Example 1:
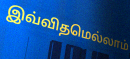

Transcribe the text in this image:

இவ்விதமெல்லாம்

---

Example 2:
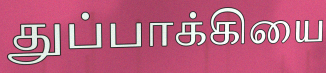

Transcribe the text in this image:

துப்பாக்கியை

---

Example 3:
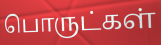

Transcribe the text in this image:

பொருட்கள்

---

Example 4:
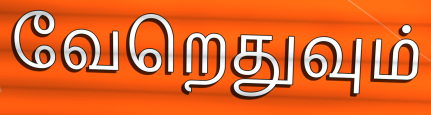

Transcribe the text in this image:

வேறெதுவும்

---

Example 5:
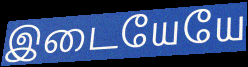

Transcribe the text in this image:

இடையேயே